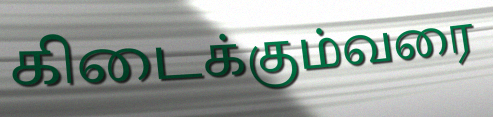
கிடைக்கும்வரை